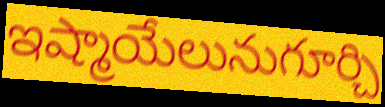
ఇష్మాయేలునుగూర్చి